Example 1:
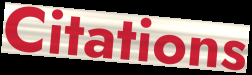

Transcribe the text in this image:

Citations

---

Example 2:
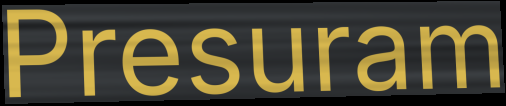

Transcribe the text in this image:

Presuram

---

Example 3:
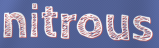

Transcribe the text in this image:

nitrous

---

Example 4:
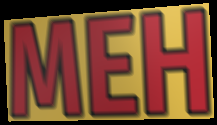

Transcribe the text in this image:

MEH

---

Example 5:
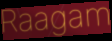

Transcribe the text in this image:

Raagam